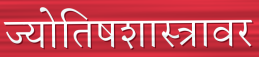
ज्योतिषशास्त्रावर